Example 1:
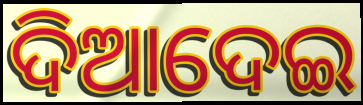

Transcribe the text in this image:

ଦିଆଦେଇ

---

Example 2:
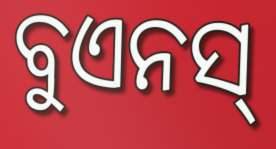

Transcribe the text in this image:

ବୁଏନସ୍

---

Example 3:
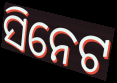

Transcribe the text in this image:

ସିନେଟ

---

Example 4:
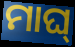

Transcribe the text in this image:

ମାଘ୍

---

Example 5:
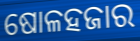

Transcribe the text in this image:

ଷୋଳହଜାର